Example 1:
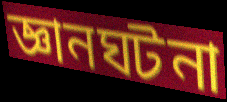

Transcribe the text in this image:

জ্ঞানঘটনা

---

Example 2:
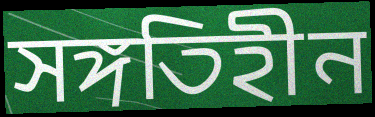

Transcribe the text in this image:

সঙ্গতিহীন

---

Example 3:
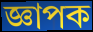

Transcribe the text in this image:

জ্ঞাপক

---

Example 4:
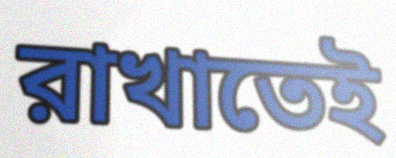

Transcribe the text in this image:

রাখাতেই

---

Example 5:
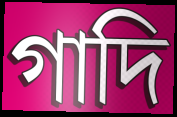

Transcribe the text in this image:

গাদি